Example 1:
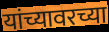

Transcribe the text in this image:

यांच्यावरच्या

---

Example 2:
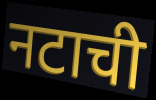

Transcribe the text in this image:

नटाची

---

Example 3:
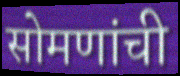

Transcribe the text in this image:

सोमणांची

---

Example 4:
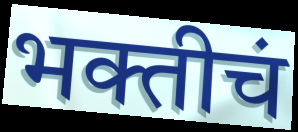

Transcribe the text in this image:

भक्तीचं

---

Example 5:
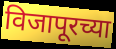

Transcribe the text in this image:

विजापूरच्या